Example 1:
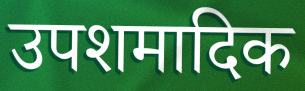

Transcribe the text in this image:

उपशमादिक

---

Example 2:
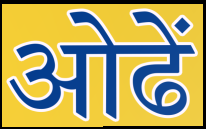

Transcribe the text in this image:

ओढें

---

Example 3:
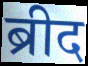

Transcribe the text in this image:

ब्रीद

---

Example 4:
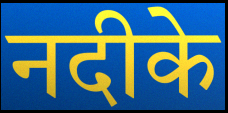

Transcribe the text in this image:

नदीके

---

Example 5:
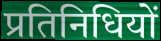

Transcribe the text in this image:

प्रतिनिधियों